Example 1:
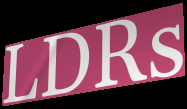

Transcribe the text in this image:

LDRs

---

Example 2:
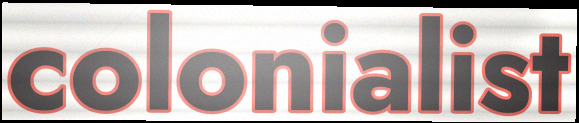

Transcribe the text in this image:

colonialist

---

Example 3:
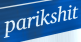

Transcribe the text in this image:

parikshit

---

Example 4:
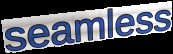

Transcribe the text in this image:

seamless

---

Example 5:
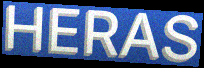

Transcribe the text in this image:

HERAS